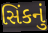
સિંકનું